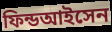
ফিন্ডআইসেন